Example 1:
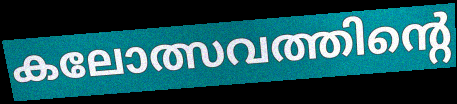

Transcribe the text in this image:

കലോത്സവത്തിന്റെ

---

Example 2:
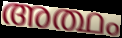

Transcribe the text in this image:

അത്ഥം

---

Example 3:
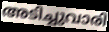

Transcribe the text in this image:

അടിച്ചുവാരി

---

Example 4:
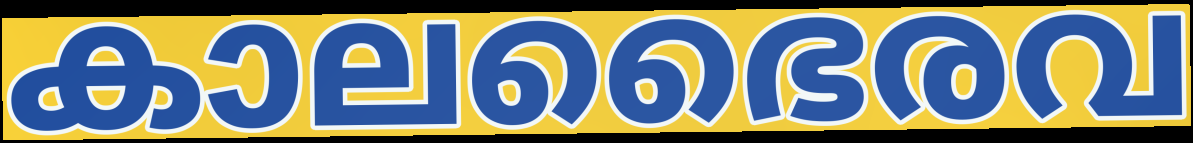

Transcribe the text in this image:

കാലഭൈരവ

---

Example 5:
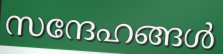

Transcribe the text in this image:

സന്ദേഹങ്ങൾ